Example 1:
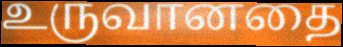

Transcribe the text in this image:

உருவானதை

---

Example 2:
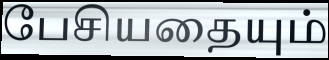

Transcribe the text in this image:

பேசியதையும்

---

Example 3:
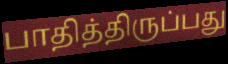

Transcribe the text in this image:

பாதித்திருப்பது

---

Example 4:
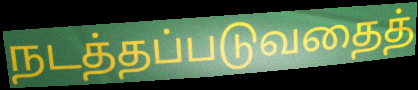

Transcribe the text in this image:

நடத்தப்படுவதைத்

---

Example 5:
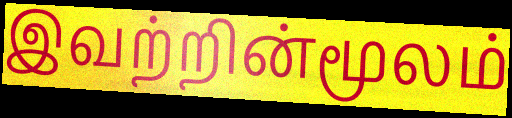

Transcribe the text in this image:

இவற்றின்மூலம்